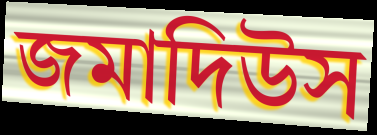
জমাদিউস